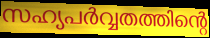
സഹ്യപർവ്വതത്തിന്റെ